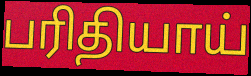
பரிதியாய்